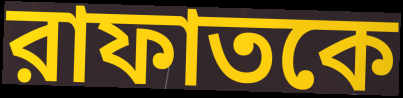
রাফাতকে